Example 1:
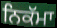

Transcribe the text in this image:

ਨਿਕੱਮਾ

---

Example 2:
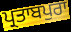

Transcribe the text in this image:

ਪ੍ਰਤਾਬਪੁਰਾ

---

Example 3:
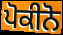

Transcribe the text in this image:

ਪੋਕੀਨੋ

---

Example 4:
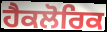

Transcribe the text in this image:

ਹੈਕਲੋਰਿਕ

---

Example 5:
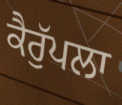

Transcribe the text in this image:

ਕੈਰੁੱਪਲਾ